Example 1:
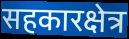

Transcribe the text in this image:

सहकारक्षेत्र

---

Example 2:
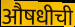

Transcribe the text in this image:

औषधीची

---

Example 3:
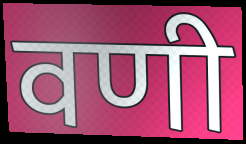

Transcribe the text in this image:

वणी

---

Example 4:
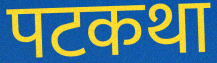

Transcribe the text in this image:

पटकथा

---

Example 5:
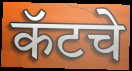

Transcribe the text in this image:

कॅटचे